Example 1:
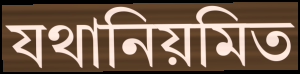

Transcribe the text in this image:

যথানিয়মিত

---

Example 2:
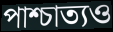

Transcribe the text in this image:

পাশ্চাত্যও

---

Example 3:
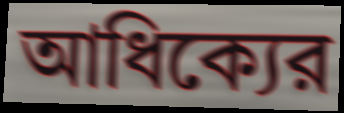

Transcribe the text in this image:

আধিক্যের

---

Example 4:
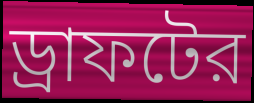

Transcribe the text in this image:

ড্রাফটের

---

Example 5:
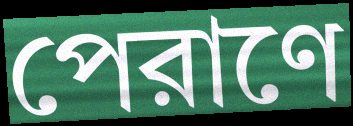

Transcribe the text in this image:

পেরাণে